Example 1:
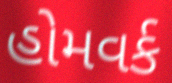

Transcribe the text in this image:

હોમવર્ક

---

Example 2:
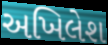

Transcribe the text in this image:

અખિલેશ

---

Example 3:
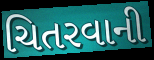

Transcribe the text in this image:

ચિતરવાની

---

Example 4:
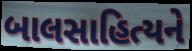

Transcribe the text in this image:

બાલસાહિત્યને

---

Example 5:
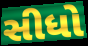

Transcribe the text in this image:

સીધો